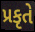
પ્રકૃતે